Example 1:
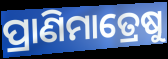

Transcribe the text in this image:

ପ୍ରାଣିମାତ୍ରେଷୁ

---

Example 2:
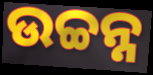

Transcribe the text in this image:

ଉଚ୍ଚନ୍ନ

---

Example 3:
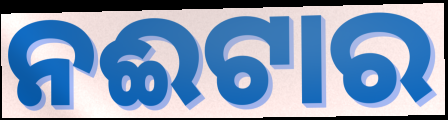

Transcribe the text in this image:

ନଈଟାର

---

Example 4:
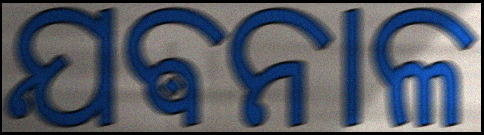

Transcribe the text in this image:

ଯଵନାଳ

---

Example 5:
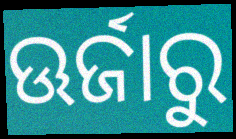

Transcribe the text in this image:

ଊର୍ଜାରୁ